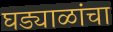
घड्याळांचा